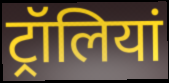
ट्रॉलियां